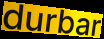
durbar